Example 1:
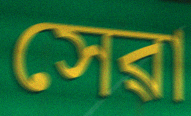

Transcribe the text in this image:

সেৱা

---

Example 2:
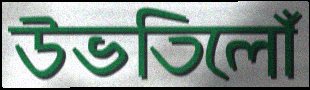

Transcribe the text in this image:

উভতিলোঁ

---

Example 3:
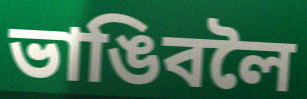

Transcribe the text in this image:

ভাঙিবলৈ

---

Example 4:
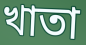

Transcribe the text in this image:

খাতা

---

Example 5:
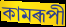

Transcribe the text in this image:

কামৰূপী